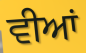
ਵੀਆਂ